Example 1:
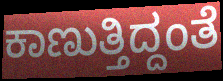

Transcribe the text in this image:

ಕಾಣುತ್ತಿದ್ದಂತೆ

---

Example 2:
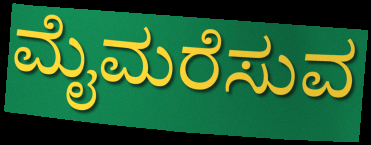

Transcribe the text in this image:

ಮೈಮರೆಸುವ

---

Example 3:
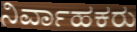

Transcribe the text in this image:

ನಿರ್ವಾಹಕರು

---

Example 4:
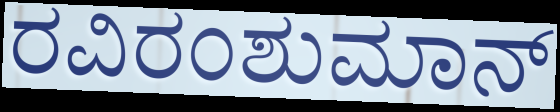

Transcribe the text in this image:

ರವಿರಂಶುಮಾನ್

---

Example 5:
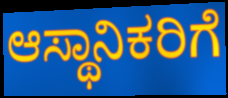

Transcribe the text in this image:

ಆಸ್ಥಾನಿಕರಿಗೆ